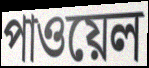
পাওয়েল